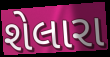
શેલારા